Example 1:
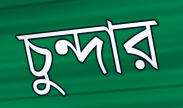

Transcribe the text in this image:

চুন্দার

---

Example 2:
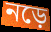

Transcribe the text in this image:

নড়ে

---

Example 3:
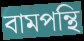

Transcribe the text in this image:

বামপন্থি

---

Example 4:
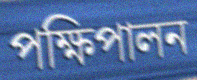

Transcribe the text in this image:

পক্ষিপালন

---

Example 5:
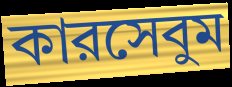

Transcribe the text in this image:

কারসেবুম